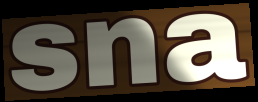
sna